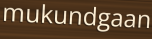
mukundgaan